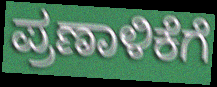
ಪ್ರಣಾಳಿಕೆಗೆ